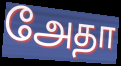
அேதா